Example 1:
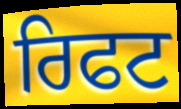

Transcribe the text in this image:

ਰਿਫਟ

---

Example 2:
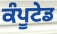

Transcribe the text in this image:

ਕੰਪੂਟੇਡ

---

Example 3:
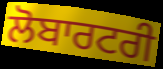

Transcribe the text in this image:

ਲੋਬਾਰਟਰੀ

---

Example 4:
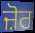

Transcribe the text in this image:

ਜ਼ੋਰ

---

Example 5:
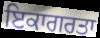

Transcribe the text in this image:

ਇਕਾਗਰਤਾ